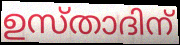
ഉസ്താദിന്